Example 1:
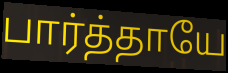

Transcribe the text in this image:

பார்த்தாயே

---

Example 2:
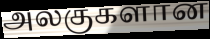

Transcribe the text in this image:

அலகுகளான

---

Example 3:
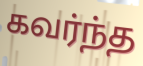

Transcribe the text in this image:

கவர்ந்த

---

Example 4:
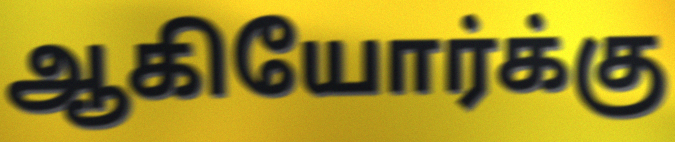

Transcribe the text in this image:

ஆகியோர்க்கு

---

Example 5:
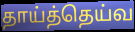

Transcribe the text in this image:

தாய்த்தெய்வ